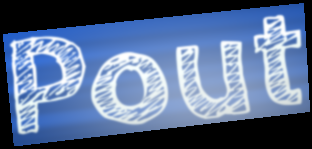
Pout